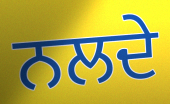
ਨਲਦੇ